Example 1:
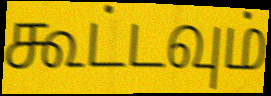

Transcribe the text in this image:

கூட்டவும்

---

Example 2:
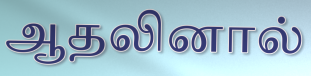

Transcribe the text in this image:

ஆதலினால்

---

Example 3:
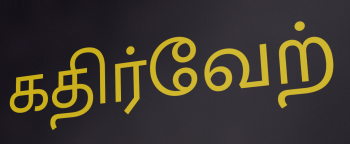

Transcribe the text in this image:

கதிர்வேற்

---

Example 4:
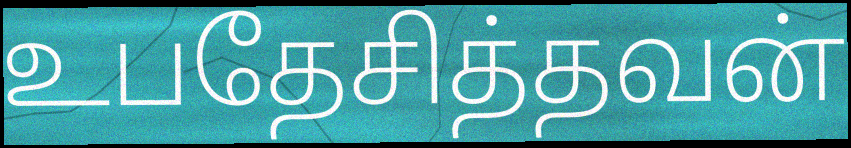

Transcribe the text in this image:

உபதேசித்தவன்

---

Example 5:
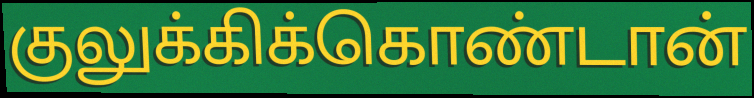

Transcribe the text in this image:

குலுக்கிக்கொண்டான்